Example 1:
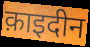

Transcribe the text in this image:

क़ाइदीन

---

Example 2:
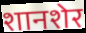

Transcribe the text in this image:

शानशेर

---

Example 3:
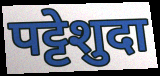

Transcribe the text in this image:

पट्टेशुदा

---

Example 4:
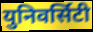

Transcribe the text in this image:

युनिवर्सिटी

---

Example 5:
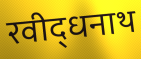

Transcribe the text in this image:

रवीद्धनाथ